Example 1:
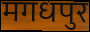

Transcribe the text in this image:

मगधपुर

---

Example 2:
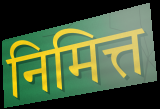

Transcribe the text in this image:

निमित्त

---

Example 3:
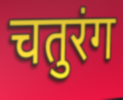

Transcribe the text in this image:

चतुरंग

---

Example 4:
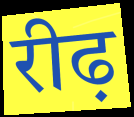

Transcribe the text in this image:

रीढ़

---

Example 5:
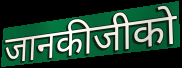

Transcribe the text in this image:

जानकीजीको